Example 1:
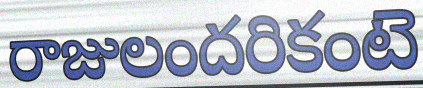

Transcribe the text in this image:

రాజులందరికంటె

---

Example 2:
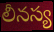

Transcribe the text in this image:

లీనస్య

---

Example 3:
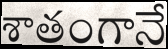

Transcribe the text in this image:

శాతంగానే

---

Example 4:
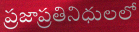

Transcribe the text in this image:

ప్రజాప్రతినిధులలో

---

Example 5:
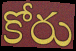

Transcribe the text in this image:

కోరు